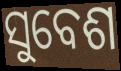
ସୁବେଶ